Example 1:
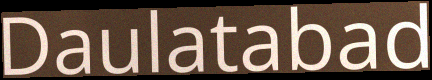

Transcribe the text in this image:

Daulatabad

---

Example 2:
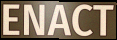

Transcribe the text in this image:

ENACT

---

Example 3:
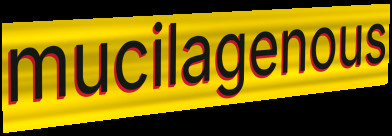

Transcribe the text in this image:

mucilagenous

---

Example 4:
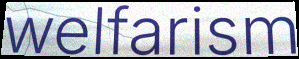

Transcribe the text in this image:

welfarism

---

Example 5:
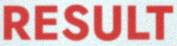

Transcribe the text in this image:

RESULT